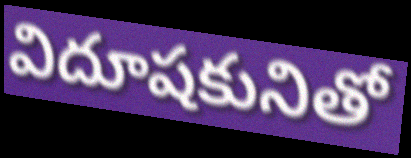
విదూషకునితో